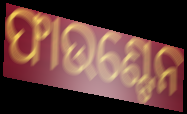
ଫାଉଣ୍ଟେନ